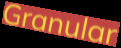
Granular